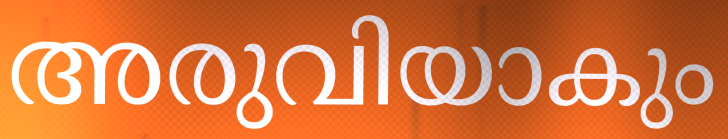
അരുവിയാകും